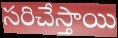
సరిచేస్తాయి